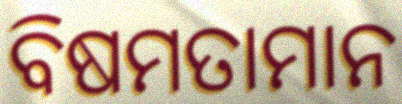
ବିଷମତାମାନ